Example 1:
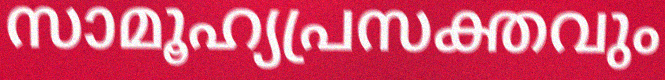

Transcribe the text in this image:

സാമൂഹ്യപ്രസക്തവും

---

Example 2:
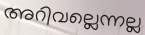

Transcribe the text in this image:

അറിവല്ലെന്നല്ല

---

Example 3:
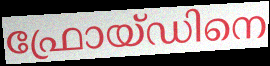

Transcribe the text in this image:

ഫ്രോയ്ഡിനെ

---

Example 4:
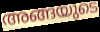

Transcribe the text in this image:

അങ്ങയുടെ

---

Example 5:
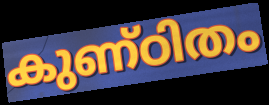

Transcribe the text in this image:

കുണ്ഠിതം